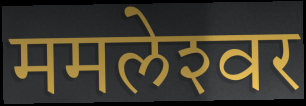
ममलेश्वर